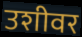
उशीवर